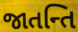
જાતન્તિ